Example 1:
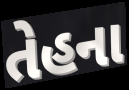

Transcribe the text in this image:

તેહના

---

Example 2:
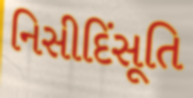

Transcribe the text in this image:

નિસીદિંસૂતિ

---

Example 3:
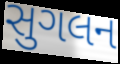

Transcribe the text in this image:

સુગલન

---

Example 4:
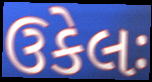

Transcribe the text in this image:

ઉકેલઃ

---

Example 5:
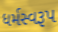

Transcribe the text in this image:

ધર્મસ્વરૂપ